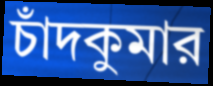
চাঁদকুমার